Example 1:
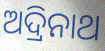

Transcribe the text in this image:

ଅଦ୍ରିନାଥ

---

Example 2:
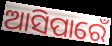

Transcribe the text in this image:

ଆସିପାରେଁ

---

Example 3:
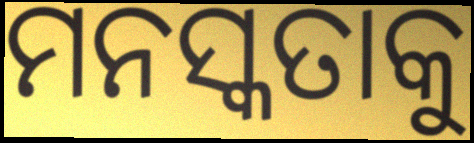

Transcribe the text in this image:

ମନସ୍କତାକୁ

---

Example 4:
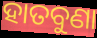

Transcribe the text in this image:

ହାତବୁଣା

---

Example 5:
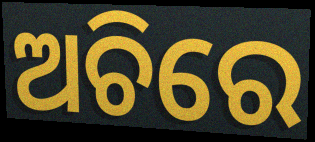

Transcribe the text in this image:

ଅଚିରେ